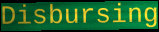
Disbursing